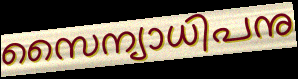
സൈന്യാധിപനു